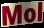
Mol